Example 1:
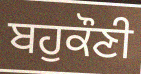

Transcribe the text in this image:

ਬਹੁਕੌਣੀ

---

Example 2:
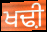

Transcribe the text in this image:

ਖਢ਼ੀ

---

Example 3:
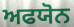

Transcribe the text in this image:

ਅਫਯੋਨ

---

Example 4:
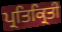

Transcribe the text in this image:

ਪ੍ਰਤਿਕ੍ਰਿਤੀ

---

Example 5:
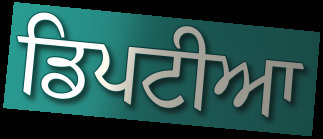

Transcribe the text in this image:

ਡਿਪਟੀਆ